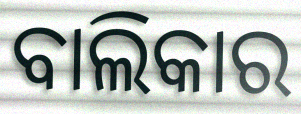
ବାଲିକାର